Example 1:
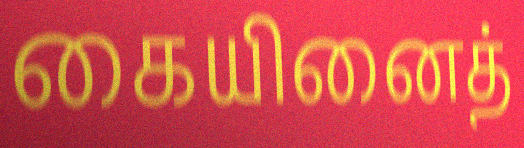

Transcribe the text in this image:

கையினைத்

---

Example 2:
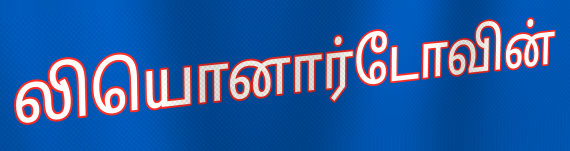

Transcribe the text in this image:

லியொனார்டோவின்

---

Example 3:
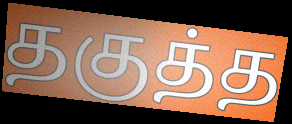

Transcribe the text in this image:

தகுத்த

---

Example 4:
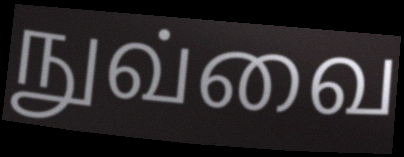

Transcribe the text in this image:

நுவ்வை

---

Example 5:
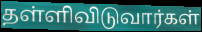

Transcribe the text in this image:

தள்ளிவிடுவார்கள்